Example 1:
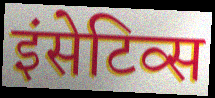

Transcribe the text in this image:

इंसेटिव्स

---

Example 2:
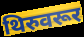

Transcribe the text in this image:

थिरुवरूर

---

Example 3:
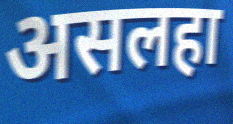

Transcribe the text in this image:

असलहा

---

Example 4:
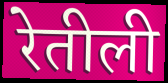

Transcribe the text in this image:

रेतीली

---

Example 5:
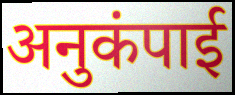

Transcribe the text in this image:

अनुकंपाई